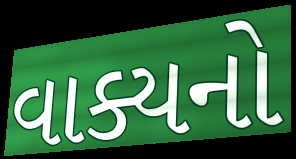
વાક્યનો